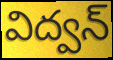
విద్వన్